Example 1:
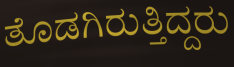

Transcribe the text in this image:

ತೊಡಗಿರುತ್ತಿದ್ದರು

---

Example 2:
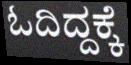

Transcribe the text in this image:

ಓದಿದ್ದಕ್ಕೆ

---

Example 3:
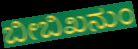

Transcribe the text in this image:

ಬೀಬಿಖನುಂ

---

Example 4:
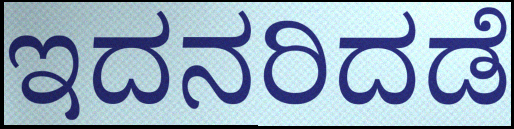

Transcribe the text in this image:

ಇದನರಿದಡೆ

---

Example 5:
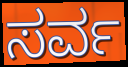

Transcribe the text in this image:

ಸರ್ವ